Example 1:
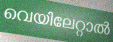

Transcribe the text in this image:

വെയിലേറ്റാൽ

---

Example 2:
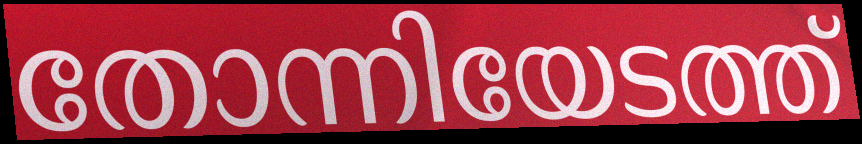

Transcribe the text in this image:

തോന്നിയേടത്ത്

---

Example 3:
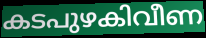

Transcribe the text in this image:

കടപുഴകിവീണ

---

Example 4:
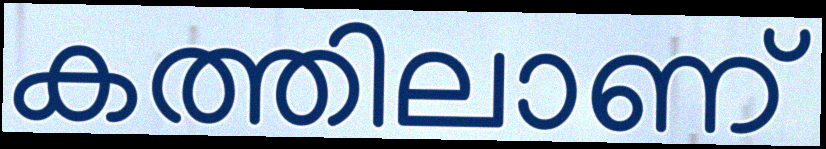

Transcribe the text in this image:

കത്തിലാണ്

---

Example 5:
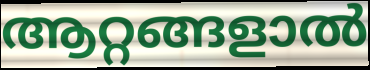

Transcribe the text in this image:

ആറ്റങ്ങളാൽ